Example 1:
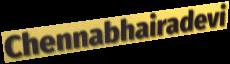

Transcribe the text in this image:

Chennabhairadevi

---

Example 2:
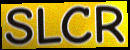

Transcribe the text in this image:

SLCR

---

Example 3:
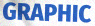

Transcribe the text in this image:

GRAPHIC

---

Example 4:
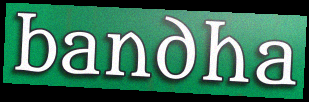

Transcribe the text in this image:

bandha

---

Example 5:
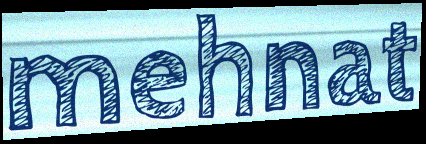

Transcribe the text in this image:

mehnat